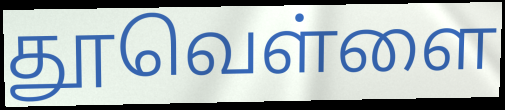
தூவெள்ளை